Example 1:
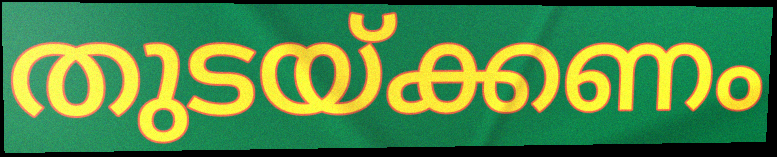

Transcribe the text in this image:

തുടയ്ക്കണം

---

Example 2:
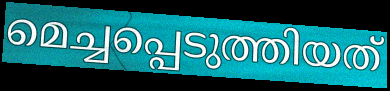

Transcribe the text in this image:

മെച്ചപ്പെടുത്തിയത്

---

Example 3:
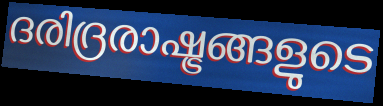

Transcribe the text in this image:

ദരിദ്രരാഷ്ട്രങ്ങളുടെ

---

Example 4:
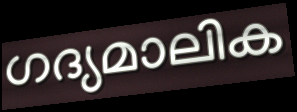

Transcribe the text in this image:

ഗദ്യമാലിക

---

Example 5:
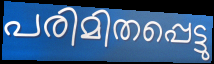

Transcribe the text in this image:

പരിമിതപ്പെട്ടു